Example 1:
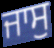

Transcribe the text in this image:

ਜਾਸੁ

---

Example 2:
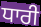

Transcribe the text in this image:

ਧਾਰੀ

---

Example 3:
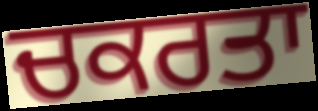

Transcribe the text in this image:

ਚਕਰਤਾ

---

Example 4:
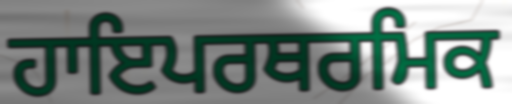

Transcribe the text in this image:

ਹਾਇਪਰਥਰਮਿਕ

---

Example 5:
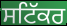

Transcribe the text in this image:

ਸਟਿੱਕਰ